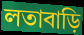
লতাবাড়ি